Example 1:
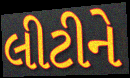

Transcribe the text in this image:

લીટીને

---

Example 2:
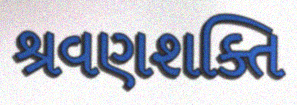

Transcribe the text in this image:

શ્રવણશક્તિ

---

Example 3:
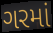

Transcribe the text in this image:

ગરમાં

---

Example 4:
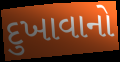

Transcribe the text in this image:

દુખાવાનો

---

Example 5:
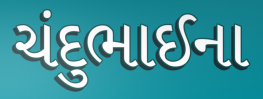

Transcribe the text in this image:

ચંદુભાઈના